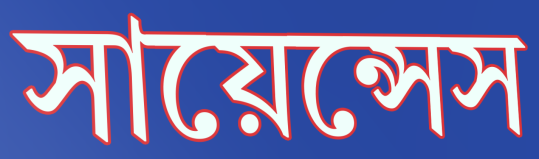
সায়েন্সেস